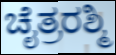
ಚೈತ್ರರಶ್ಮಿ